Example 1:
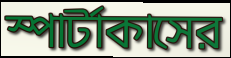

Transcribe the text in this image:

স্পার্টাকাসের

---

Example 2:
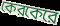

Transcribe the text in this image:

কেরকেরে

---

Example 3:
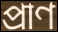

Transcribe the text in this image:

প্রাণ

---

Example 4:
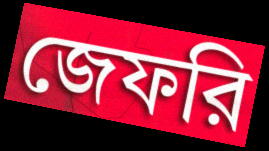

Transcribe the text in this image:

জেফরি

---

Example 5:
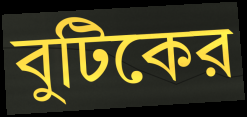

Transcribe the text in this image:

বুটিকের